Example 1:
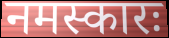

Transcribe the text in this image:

नमस्कारः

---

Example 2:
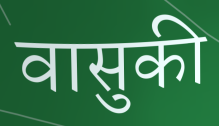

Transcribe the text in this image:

वासुकी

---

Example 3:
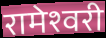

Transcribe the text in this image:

रामेश्वरी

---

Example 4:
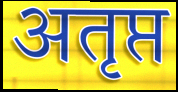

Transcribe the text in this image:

अतृप्त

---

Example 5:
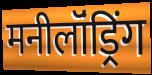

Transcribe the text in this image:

मनीलॉंड्रिंग